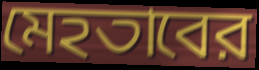
মেহতাবের